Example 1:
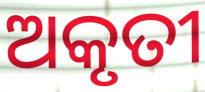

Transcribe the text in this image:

ଅକୃତୀ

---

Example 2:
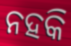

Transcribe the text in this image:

ନହକି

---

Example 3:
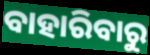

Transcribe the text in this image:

ବାହାରିବାରୁ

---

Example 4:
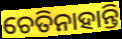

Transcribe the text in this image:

ଚେତିନାହାନ୍ତି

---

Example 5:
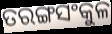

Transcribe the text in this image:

ତରଙ୍ଗସଂକୁଳ